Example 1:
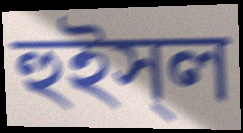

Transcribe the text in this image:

হুইস্‌ল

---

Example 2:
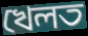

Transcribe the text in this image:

খেলত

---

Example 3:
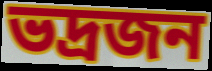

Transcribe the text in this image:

ভদ্রজন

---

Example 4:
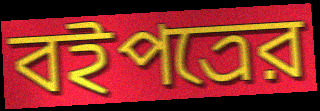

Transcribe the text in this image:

বইপত্রের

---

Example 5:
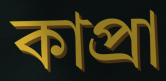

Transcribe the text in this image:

কাপ্রা